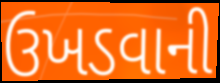
ઉખડવાની